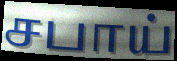
சபாய்